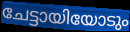
ചേട്ടായിയോടും